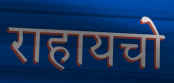
राहायचो